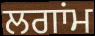
ਲਗਾਂਮ